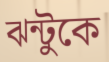
ঝন্টুকে